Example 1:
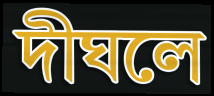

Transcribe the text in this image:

দীঘলে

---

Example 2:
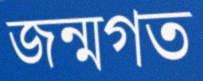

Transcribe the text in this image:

জন্মগত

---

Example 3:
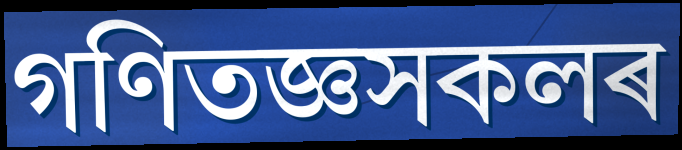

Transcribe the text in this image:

গণিতজ্ঞসকলৰ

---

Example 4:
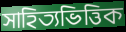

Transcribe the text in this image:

সাহিত্যভিত্তিক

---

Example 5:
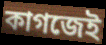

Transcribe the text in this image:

কাগজেই